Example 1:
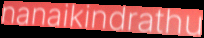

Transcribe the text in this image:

nanaikindrathu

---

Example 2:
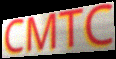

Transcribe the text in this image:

CMTC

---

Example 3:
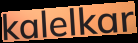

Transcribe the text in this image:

kalelkar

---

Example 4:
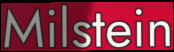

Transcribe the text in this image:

Milstein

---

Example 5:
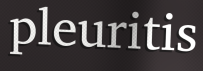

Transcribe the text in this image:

pleuritis